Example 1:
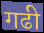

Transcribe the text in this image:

गढी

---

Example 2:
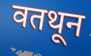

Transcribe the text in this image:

वतथून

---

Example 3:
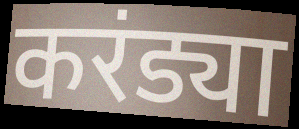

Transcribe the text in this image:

करंड्या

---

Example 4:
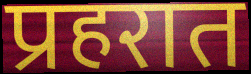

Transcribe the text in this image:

प्रहरात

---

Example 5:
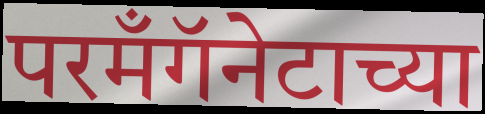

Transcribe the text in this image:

परमँगॅनेटाच्या